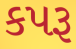
કપરૂ